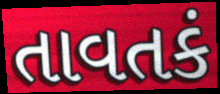
તાવતકં